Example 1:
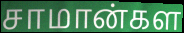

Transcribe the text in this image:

சாமான்கள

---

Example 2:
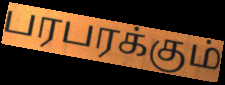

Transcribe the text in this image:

பரபரக்கும்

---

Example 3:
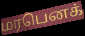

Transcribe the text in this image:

மரபெனக்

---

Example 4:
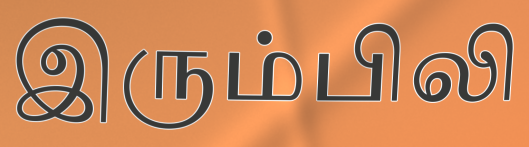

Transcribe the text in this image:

இரும்பிலி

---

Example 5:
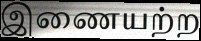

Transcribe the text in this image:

இணையற்ற